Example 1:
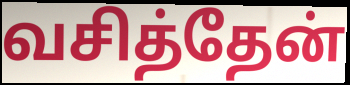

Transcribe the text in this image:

வசித்தேன்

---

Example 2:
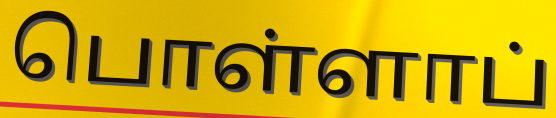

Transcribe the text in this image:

பொள்ளாப்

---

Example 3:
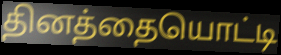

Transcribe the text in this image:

தினத்தையொட்டி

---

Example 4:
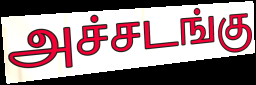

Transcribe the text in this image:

அச்சடங்கு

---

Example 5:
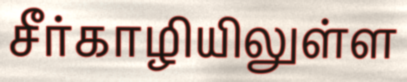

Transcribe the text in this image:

சீர்காழியிலுள்ள